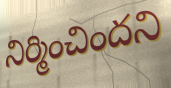
నిర్మించిందని